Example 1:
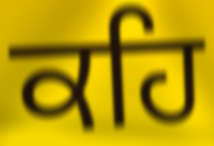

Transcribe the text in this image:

ਕਹਿ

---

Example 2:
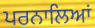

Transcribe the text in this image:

ਪਰਨਾਲਿਆਂ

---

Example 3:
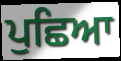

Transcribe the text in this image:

ਪੁਛਿਆ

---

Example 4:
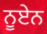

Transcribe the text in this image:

ਨੂਏਨ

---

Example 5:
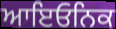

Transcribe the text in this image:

ਆਇਓਨਿਕ